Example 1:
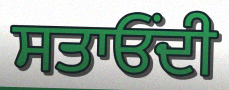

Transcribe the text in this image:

ਸਤਾਓਂਦੀ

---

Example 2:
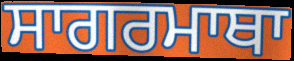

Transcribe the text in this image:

ਸਾਗਰਮਾਥਾ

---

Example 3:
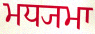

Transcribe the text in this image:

ਮਧ੍ਯਮਾ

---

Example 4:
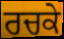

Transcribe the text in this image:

ਰਚਕੇ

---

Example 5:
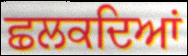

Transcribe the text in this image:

ਛਲਕਦਿਆਂ